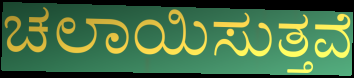
ಚಲಾಯಿಸುತ್ತವೆ